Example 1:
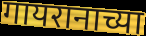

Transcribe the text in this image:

गायरानाच्या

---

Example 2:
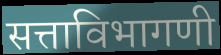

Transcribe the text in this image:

सत्ताविभागणी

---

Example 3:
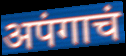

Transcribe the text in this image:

अपंगाचं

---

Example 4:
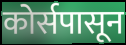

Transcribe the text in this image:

कोर्सपासून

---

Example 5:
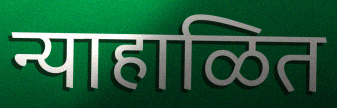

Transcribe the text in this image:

न्याहाळित